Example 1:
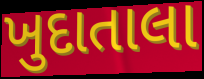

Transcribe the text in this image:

ખુદાતાલા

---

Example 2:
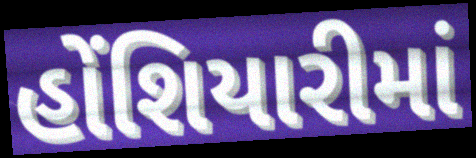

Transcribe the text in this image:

હોંશિયારીમાં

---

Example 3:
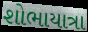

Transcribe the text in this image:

શોભાયાત્રા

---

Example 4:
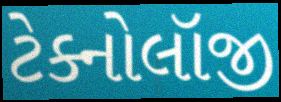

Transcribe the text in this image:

ટેક્નોલૉજી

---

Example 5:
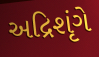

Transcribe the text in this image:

અદ્રિશૃંગે